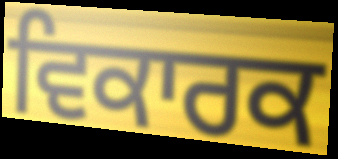
ਵਿਕਾਰਕ